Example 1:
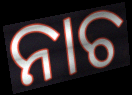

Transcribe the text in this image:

ନାଚ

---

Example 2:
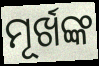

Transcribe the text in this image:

ମୂର୍ଖଙ୍କ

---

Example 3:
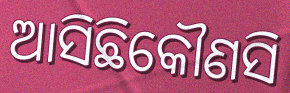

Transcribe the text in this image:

ଆସିଛିକୌଣସି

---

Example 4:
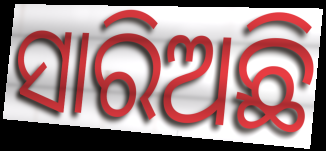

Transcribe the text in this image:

ସାରିଅଛି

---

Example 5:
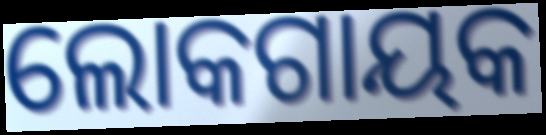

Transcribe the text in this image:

ଲୋକଗାୟକ